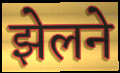
झेलने